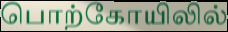
பொற்கோயிலில்